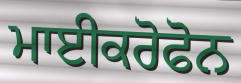
ਮਾਈਕਰੋਫੋਨ